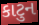
કાટુન